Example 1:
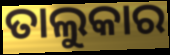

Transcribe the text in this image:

ତାଲୁକାର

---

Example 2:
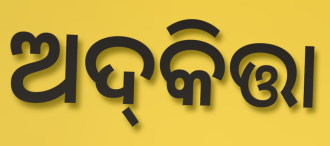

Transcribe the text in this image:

ଅଦ୍‌କିତ୍ତା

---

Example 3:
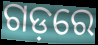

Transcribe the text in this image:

ଗଡ଼ରେ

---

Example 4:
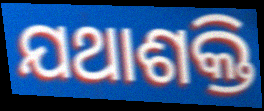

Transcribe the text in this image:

ଯଥାଶକ୍ତି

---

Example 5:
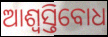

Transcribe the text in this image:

ଆଶ୍ଵସ୍ତିବୋଧ